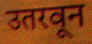
उतरवून